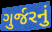
ગુર્જરનું